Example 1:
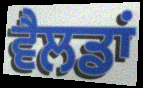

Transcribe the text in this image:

ਵੈਲਡਾਂ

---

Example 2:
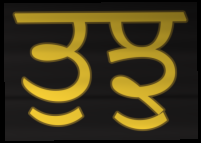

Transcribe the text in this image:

ਤੁਝੁ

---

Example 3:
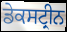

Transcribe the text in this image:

ਡੇਕਸਟ੍ਰੀਨ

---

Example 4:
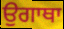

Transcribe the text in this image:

ਉਗਾਥਾ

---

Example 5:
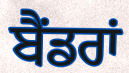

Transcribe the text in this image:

ਬੈਂਡਰਾਂ